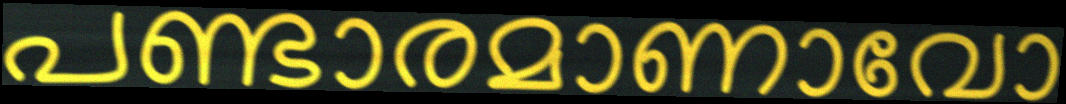
പണ്ടാരമാണാവോ